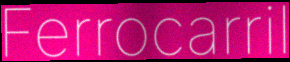
Ferrocarril